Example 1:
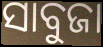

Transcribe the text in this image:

ସାବୁଜା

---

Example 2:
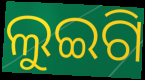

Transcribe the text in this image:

ଲୁଇଗି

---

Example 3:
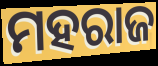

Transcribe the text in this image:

ମହରାଜ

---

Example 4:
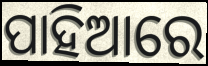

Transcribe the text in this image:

ପାହିଆରେ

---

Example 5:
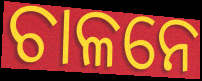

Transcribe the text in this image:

ଚାଳନେ